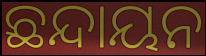
ଛନ୍ଦାୟନ